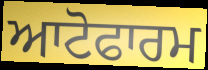
ਆਟੋਫਾਰਮ